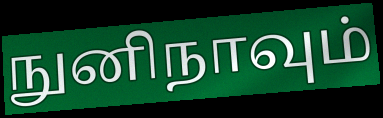
நுனிநாவும்